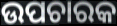
ଉପଚାରକ